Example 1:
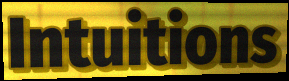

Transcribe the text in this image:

Intuitions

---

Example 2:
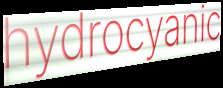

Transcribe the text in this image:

hydrocyanic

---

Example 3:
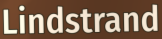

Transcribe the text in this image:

Lindstrand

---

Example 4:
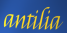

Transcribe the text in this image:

antilia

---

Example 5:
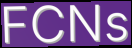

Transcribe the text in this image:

FCNs